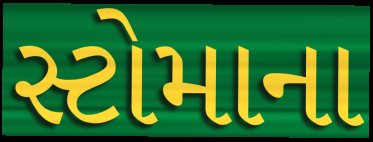
સ્ટોમાના